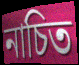
নাচিত